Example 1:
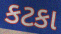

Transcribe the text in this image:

કટકા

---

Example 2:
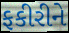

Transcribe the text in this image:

ફકીરીને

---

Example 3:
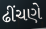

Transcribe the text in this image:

ઢીંચણે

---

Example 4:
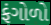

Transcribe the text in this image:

ફંગોળો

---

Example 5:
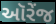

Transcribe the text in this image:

ઑરેંજ